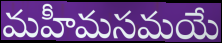
మహీమసమయే